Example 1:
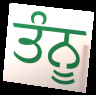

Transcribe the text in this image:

ਤੰਨੂ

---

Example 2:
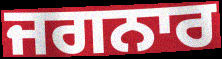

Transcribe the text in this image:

ਜਗਨਾਰ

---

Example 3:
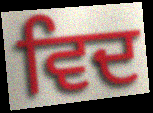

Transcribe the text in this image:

ਵਿਦ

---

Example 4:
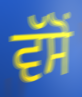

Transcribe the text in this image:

ਵੱਸੋਂ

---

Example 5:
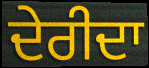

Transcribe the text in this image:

ਦੇਰੀਦਾ